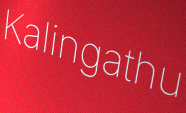
Kalingathu